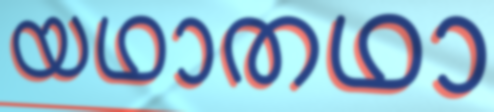
യഥാതഥാ